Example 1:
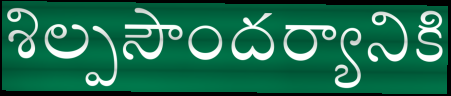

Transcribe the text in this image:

శిల్పసౌందర్యానికి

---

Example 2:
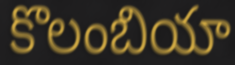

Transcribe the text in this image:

కొలంబియా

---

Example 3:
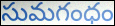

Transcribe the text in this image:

సుమగంధం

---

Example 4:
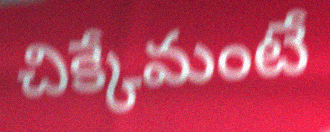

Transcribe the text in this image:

చిక్కేమంటే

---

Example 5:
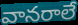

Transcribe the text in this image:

వానరాలే